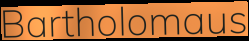
Bartholomaus